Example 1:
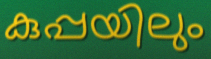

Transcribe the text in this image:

കുപ്പയിലും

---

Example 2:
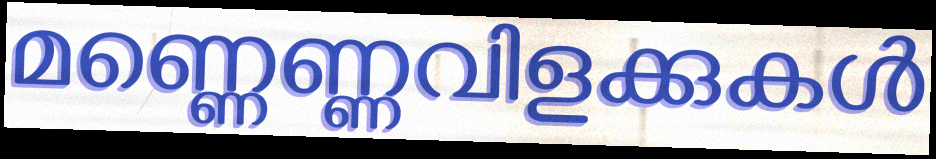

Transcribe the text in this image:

മണ്ണെണ്ണവിളക്കുകൾ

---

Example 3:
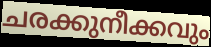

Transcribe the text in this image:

ചരക്കുനീക്കവും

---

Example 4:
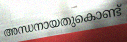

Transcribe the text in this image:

അന്ധനായതുകൊണ്ട്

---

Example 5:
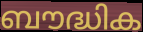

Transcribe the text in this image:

ബൗദ്ധിക